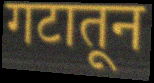
गटातून